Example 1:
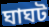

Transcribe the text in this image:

ঘাঘট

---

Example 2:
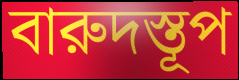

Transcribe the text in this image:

বারুদস্তূপ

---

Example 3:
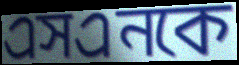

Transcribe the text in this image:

এসএনকে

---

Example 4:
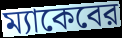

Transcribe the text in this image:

ম্যাকেবের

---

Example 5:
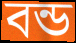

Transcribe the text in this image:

বন্ড